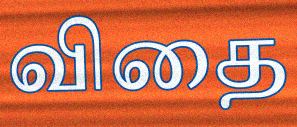
விதை